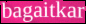
bagaitkar